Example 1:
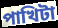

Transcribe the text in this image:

পাখিটা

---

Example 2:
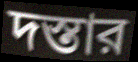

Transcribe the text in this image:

দস্তার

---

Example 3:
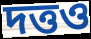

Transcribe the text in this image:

দত্তও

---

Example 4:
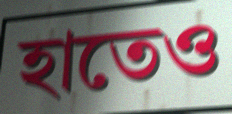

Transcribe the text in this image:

হাতেও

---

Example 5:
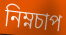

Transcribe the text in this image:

নিম্নচাপ